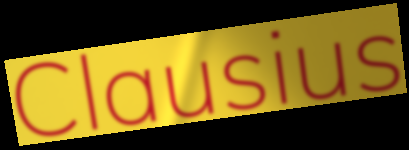
Clausius